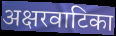
अक्षरवाटिका